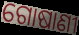
ଗୋଷାଣୀ